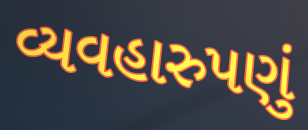
વ્યવહારુપણું